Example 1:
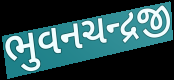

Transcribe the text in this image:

ભુવનચન્દ્રજી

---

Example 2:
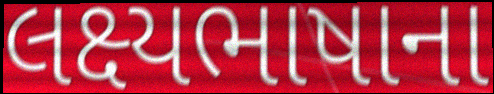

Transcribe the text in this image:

લક્ષ્યભાષાના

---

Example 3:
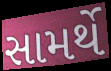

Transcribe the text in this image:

સામર્થે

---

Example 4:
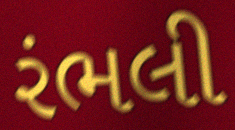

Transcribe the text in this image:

રંભલી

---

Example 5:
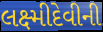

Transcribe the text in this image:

લક્ષ્મીદેવીની